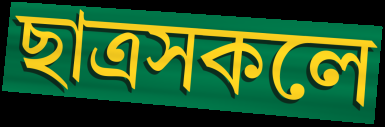
ছাত্ৰসকলে